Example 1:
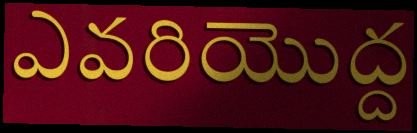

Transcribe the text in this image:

ఎవరియొద్ద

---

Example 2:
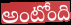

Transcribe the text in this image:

అంటోంది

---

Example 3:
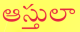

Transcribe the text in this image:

ఆస్తులా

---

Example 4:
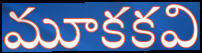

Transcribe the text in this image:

మూకకవి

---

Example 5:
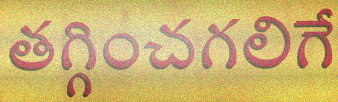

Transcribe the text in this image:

తగ్గించగలిగే